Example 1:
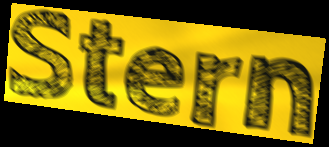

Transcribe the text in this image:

Stern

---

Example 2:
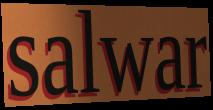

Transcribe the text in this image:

salwar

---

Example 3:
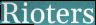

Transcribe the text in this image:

Rioters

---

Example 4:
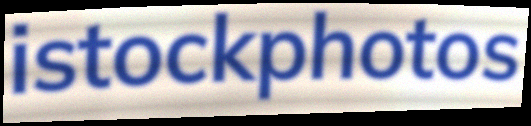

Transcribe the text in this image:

istockphotos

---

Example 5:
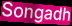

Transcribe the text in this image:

Songadh